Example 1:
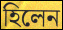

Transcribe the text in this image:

হিলেন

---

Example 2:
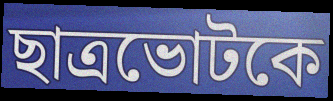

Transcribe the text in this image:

ছাত্রভোটকে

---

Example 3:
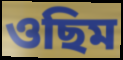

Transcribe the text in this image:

ওছিম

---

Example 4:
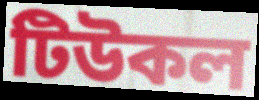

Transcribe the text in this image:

টিউকল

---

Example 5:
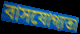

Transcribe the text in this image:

বাসযোগ্যতা